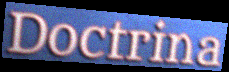
Doctrina